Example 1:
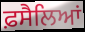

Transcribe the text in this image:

ਫ਼ਸੈਲਿਆਂ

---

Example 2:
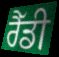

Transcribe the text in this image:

ਰੈੱਡੀ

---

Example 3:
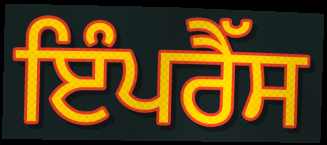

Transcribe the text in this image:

ਇੰਪਰੈੱਸ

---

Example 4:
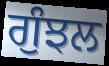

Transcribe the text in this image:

ਗੁੰਝਲ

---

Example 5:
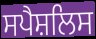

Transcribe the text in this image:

ਸਪੈਸ਼ਲਿਸ